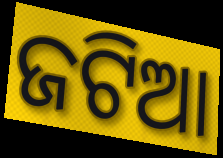
ଜଟିଆ